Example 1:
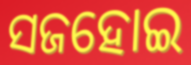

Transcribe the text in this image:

ସଜହୋଇ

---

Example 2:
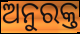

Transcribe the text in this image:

ଅନୁରକ୍ତ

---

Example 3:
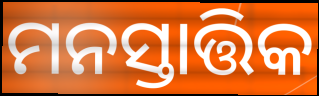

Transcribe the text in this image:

ମନସ୍ତାତ୍ତିକ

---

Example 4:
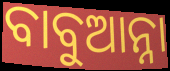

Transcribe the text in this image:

ବାବୁଆନ୍ନା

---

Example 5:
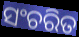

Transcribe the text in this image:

ସଂଚରିତ